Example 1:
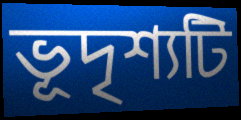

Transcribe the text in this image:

ভূদৃশ্যটি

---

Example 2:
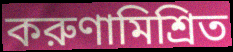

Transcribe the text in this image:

করুণামিশ্রিত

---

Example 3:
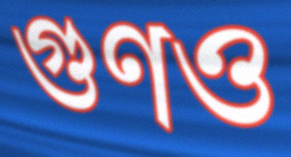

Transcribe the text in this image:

গুণও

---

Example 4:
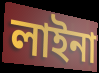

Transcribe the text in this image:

লাইনা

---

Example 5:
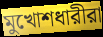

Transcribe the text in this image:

মুখোশধারীরা